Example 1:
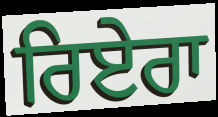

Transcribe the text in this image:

ਰਿਏਰਾ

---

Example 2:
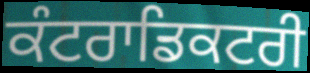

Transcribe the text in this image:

ਕੰਟਰਾਡਿਕਟਰੀ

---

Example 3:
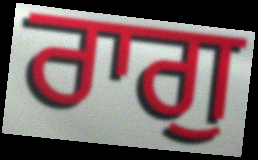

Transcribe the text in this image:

ਰਾਗੁ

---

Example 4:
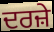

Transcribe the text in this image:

ਦਰਜ਼ੇ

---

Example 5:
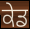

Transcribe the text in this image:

ਕੇਡ